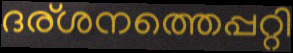
ദര്ശനത്തെപ്പറ്റി